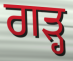
ਗੜ੍ਹ